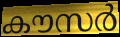
കൗസർ